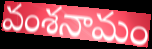
వంశనామం